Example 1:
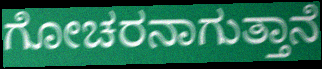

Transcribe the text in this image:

ಗೋಚರನಾಗುತ್ತಾನೆ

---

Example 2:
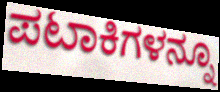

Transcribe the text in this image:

ಪಟಾಕಿಗಳನ್ನೂ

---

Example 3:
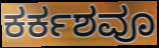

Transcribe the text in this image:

ಕರ್ಕಶವೂ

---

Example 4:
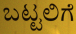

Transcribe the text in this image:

ಬಟ್ಟಲಿಗೆ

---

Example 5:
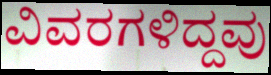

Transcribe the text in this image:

ವಿವರಗಳಿದ್ದವು